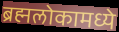
ब्रह्मलोकामध्ये